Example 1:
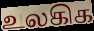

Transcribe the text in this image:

உலகிக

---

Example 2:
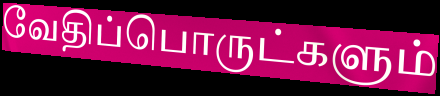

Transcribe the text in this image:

வேதிப்பொருட்களும்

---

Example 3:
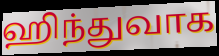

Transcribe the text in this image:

ஹிந்துவாக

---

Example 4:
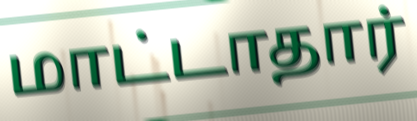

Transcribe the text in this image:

மாட்டாதார்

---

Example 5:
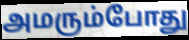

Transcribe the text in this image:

அமரும்போது